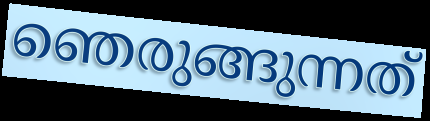
ഞെരുങ്ങുന്നത്